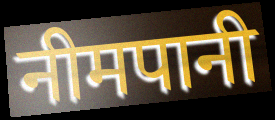
नीमपानी